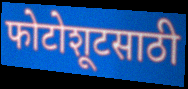
फोटोशूटसाठी